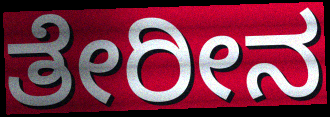
ತೇರೀನ